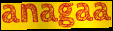
anagaa